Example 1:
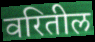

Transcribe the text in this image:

वरितील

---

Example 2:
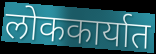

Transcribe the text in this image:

लोककार्यात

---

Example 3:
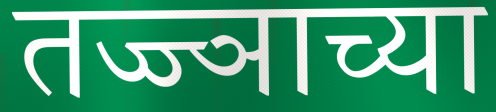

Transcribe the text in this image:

तज्ज्ञाच्या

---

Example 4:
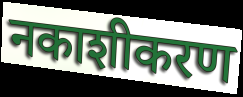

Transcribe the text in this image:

नकाशीकरण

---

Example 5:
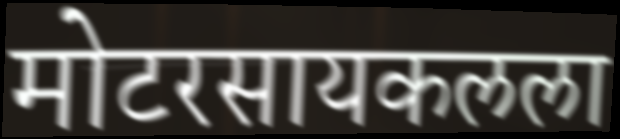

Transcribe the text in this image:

मोटरसायकलला